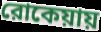
রোকেয়ায়